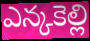
ఎన్కకెల్లి